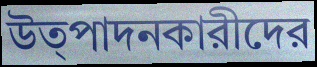
উত্পাদনকারীদের